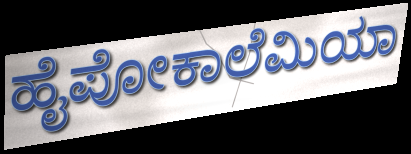
ಹೈಪೋಕಾಲೆಮಿಯಾ